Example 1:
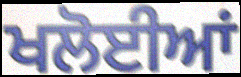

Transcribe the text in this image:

ਖਲੋਈਆਂ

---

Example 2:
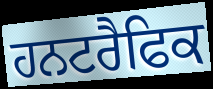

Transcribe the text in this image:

ਹਨਟਰੈਫਿਕ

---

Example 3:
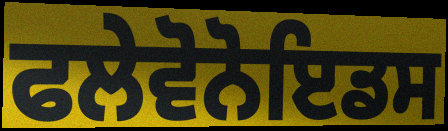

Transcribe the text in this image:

ਫਲੇਵੋਨੋਇਡਸ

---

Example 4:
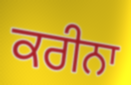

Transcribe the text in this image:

ਕਰੀਨਾ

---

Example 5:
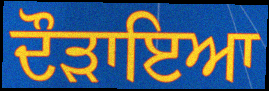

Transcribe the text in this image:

ਦੌੜਾਇਆ